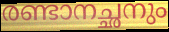
രണ്ടാനച്ഛനും